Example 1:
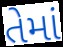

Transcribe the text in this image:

તેમાં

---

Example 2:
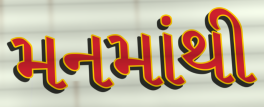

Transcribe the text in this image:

મનમાંથી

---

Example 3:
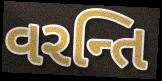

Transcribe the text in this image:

વરન્તિ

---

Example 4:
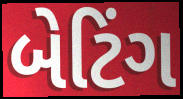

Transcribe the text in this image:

બેટિંગ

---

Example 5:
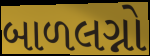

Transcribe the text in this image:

બાળલગ્નો